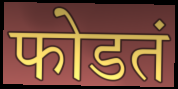
फोडतं